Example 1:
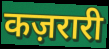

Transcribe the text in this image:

कज़रारी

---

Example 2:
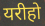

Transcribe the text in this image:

यरीहो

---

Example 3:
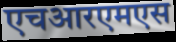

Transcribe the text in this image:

एचआरएमएस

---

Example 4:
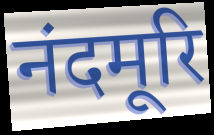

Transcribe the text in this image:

नंदमूरि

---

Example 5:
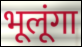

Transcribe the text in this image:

भूलूंगा